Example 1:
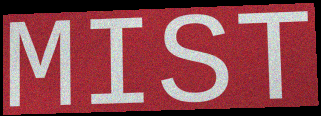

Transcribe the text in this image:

MIST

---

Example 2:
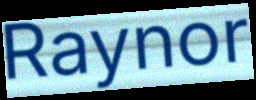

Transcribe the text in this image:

Raynor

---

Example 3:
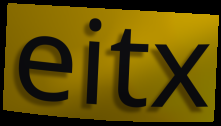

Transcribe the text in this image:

eitx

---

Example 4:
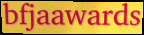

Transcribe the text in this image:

bfjaawards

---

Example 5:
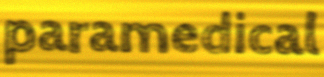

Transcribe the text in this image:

paramedical